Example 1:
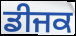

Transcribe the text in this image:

ਡੀਜਕ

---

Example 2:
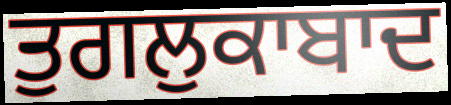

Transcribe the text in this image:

ਤੁਗਲੁਕਾਬਾਦ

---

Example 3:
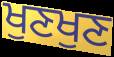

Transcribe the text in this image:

ਖੁਣਖੁਣ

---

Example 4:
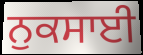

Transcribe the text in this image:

ਨੁਕਸਾਈ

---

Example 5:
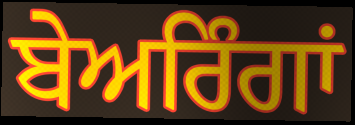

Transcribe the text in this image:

ਬੇਅਰਿੰਗਾਂ